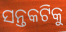
ସନ୍ତକଟିକୁ